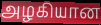
அழகியான